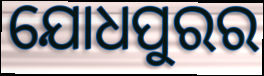
ଯୋଧପୁରର